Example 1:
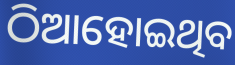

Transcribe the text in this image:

ଠିଆହୋଇଥିବ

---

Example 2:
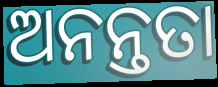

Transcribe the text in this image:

ଅନନ୍ତତା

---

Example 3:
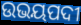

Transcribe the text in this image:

ଉଭୟପଦୀ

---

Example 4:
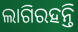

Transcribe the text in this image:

ଲାଗିରହନ୍ତି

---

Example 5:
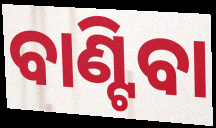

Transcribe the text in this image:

ବାଣ୍ଟିବା